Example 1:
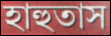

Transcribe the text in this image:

হাহুতাস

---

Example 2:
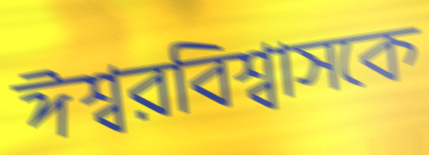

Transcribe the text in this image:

ঈশ্বরবিশ্বাসকে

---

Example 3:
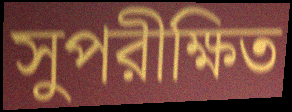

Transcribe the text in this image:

সুপরীক্ষিত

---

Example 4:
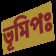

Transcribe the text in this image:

ভূমিপঃ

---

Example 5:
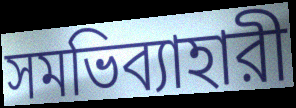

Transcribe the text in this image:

সমভিব্যাহারী